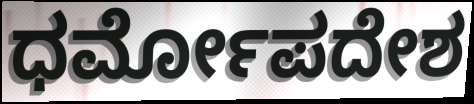
ಧರ್ಮೋಪದೇಶ